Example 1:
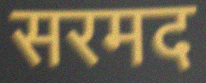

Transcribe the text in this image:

सरमद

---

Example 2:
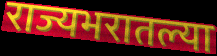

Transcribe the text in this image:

राज्यभरातल्या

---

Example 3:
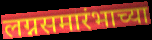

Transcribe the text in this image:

लग्नसमारंभाच्या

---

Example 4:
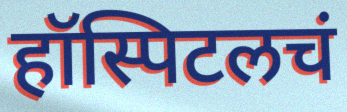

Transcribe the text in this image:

हॉस्पिटलचं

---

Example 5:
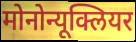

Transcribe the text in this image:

मोनोन्यूक्लियर